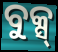
ବୁକ୍ସ୍